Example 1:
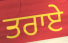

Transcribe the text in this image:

ਤਰਾਏ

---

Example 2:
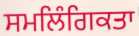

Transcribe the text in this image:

ਸਮਲਿੰਗਿਕਤਾ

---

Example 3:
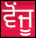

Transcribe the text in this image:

ਵੋਂਜੂ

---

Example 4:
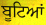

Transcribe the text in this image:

ਬੂਟਿਆਂ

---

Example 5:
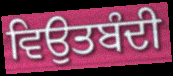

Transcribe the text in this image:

ਵਿਉਤਬੰਦੀ